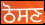
ਠੋਸਣ